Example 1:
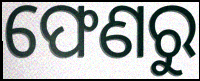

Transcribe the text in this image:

ଫେଣରୁ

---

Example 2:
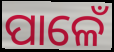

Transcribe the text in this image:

ପାଳେଁ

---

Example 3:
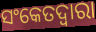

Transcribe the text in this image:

ସଂକେତଦ୍ୱାରା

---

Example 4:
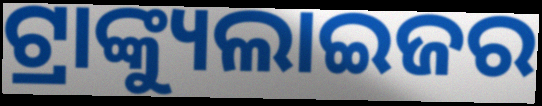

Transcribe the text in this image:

ଟ୍ରାଙ୍କ୍ୟୁଲାଇଜର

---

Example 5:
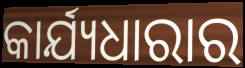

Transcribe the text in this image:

କାର୍ଯ୍ୟଧାରାର